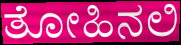
ತೋಹಿನಲಿ